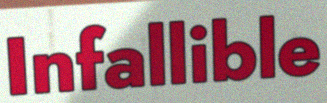
Infallible